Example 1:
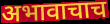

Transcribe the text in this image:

अभावाचाच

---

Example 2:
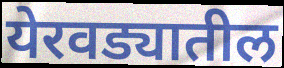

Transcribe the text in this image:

येरवड्यातील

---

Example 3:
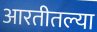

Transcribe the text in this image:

आरतीतल्या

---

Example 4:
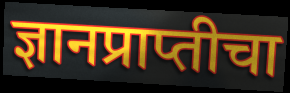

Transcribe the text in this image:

ज्ञानप्राप्तीचा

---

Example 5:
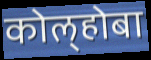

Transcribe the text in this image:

कोल्होबा